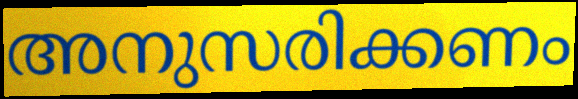
അനുസരിക്കണം